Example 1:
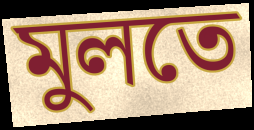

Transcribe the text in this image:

মুলতে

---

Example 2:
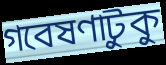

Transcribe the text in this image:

গবেষণাটুকু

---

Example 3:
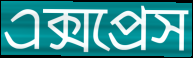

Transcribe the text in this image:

এক্সপ্রেস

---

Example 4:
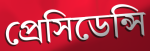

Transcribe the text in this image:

প্রেসিডেন্সি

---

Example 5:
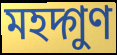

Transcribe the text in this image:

মহদ্গুণ